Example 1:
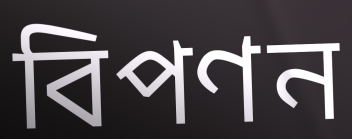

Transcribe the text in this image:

বিপণন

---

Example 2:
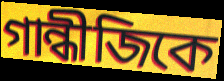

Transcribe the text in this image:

গান্ধীজিকে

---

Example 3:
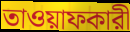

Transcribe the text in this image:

তাওয়াফকারী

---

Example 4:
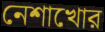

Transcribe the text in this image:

নেশাখোর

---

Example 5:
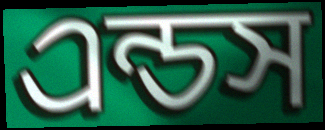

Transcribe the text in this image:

এন্ডস